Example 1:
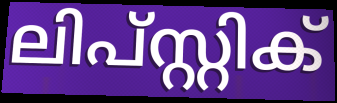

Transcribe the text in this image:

ലിപ്സ്റ്റിക്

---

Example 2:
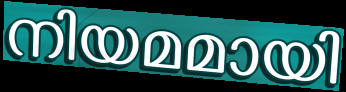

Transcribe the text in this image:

നിയമമായി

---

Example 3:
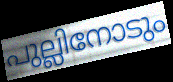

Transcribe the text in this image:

പുല്ലിനോടും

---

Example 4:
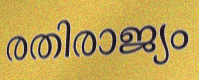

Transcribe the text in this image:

രതിരാജ്യം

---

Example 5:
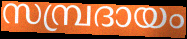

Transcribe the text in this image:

സമ്പ്രദായം